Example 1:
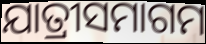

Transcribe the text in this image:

ଯାତ୍ରୀସମାଗମ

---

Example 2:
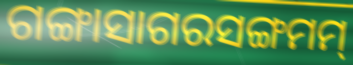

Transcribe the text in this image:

ଗଙ୍ଗାସାଗରସଙ୍ଗମମ୍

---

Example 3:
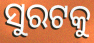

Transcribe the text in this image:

ସୁରଟକୁ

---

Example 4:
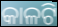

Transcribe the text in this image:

କାଳଟି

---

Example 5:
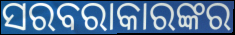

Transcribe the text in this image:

ସରବରାକାରଙ୍କର